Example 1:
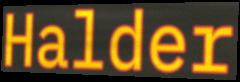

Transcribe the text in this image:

Halder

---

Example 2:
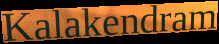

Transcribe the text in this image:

Kalakendram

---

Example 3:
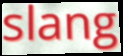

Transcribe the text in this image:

slang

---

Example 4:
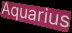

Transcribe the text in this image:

Aquarius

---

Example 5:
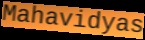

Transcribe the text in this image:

Mahavidyas